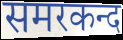
समरकन्द